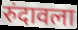
रुंदावला